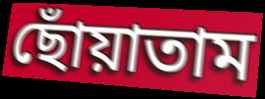
ছোঁয়াতাম